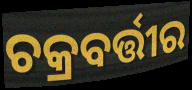
ଚକ୍ରବର୍ତ୍ତୀର